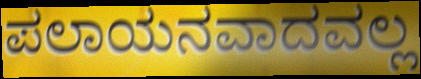
ಪಲಾಯನವಾದವಲ್ಲ